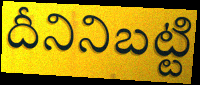
దీనినిబట్టి